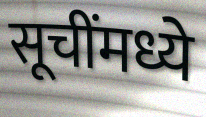
सूचींमध्ये